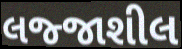
લજ્જાશીલ